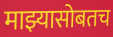
माझ्यासोबतच